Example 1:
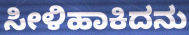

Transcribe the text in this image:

ಸೀಳಿಹಾಕಿದನು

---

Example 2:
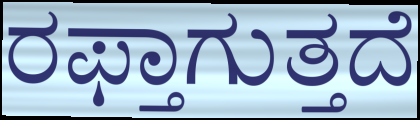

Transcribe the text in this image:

ರಫ್ತಾಗುತ್ತದೆ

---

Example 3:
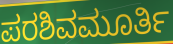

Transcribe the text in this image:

ಪರಶಿವಮೂರ್ತಿ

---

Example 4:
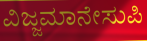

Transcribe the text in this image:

ವಿಜ್ಜಮಾನೇಸುಪಿ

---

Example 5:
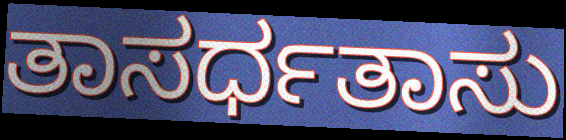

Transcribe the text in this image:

ತಾಸರ್ಧತಾಸು